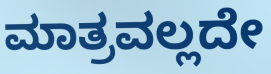
ಮಾತ್ರವಲ್ಲದೇ